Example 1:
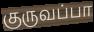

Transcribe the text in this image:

குருவப்பா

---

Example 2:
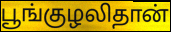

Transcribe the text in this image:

பூங்குழலிதான்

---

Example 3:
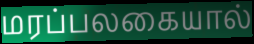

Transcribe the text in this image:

மரப்பலகையால்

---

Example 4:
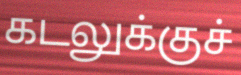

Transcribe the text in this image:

கடலுக்குச்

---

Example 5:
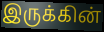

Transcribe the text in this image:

இருக்கின்